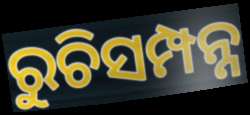
ରୁଚିସମ୍ପନ୍ନ